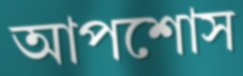
আপশোস